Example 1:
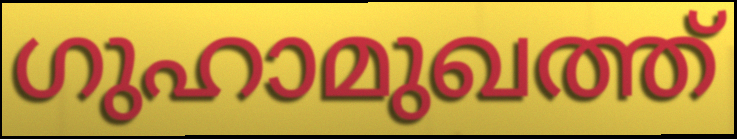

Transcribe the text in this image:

ഗുഹാമുഖത്ത്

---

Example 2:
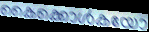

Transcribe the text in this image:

കൈക്കൊൾകയോ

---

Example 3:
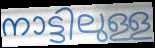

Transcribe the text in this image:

നാട്ടിലുള്ള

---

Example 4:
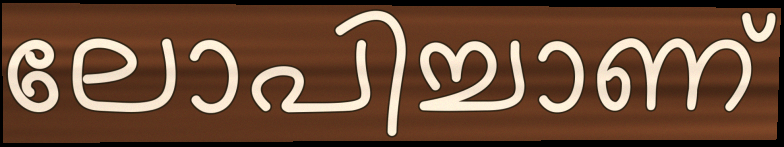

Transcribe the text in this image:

ലോപിച്ചാണ്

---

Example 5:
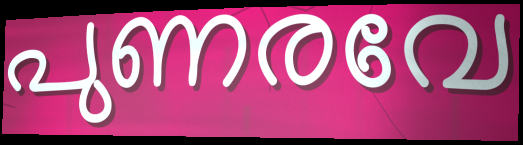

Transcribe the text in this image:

പുണരവേ